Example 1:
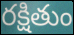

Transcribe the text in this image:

రక్షితుం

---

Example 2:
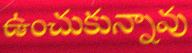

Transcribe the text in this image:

ఉంచుకున్నావు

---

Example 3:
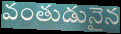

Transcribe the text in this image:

వంతుడునైన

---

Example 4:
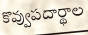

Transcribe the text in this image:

కొవ్వుపదార్థాల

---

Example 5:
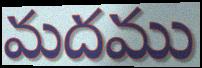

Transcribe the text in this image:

మదము